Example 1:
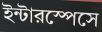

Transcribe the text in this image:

ইন্টারস্পেসে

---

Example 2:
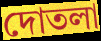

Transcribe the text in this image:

দোতলা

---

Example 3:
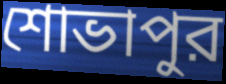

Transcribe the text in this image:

শোভাপুর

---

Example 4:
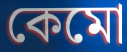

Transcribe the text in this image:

কেমো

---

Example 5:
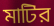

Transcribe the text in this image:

মাটির